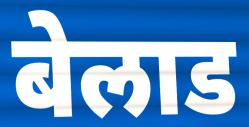
बेलाड